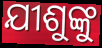
ଯୀଶୁଙ୍କୁ